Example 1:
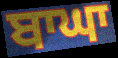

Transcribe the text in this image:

ਬਾਘਾ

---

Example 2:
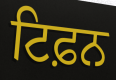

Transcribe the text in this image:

ਟਿਫ਼ਨ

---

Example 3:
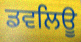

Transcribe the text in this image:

ਡਵਲਿਊ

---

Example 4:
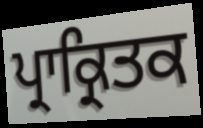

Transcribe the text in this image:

ਪ੍ਰਾਕ੍ਰਿਤਕ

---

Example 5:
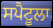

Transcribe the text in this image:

ਸਪੈਟੂਲਾ